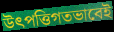
উৎপত্তিগতভাবেই